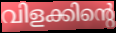
വിളക്കിന്റെ